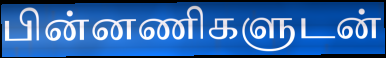
பின்னணிகளுடன்